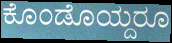
ಕೊಂಡೊಯ್ದರೂ